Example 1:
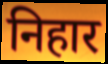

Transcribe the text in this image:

निहार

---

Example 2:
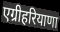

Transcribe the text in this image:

एग्रीहरियाणा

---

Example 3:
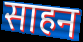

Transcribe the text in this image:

साहन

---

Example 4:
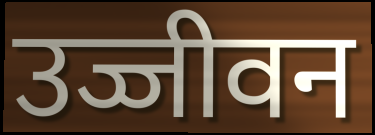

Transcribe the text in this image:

उज्जीवन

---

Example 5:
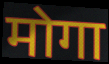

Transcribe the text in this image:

मोगा